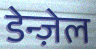
डेन्ज़ेल